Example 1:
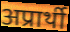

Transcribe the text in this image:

अप्रार्थी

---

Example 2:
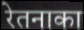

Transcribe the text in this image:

रेतनाका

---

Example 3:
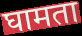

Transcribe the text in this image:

घामता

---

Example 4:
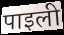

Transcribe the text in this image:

पाइली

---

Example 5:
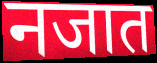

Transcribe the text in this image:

नजात